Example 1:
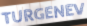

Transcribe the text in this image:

TURGENEV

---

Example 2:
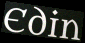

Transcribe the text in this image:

Edin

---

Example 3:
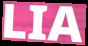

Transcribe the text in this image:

LIA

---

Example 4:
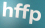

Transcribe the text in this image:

hffp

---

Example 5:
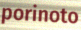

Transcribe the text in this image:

porinoto